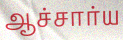
ஆச்சார்ய